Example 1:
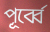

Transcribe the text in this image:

পূর্ব্বে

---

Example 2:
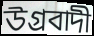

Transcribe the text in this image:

উগ্রবাদী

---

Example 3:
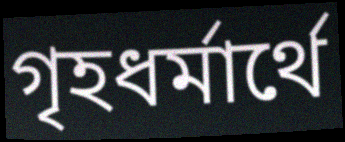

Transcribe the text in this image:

গৃহধর্মার্থে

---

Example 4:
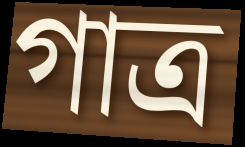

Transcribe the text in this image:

গাত্র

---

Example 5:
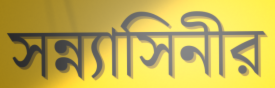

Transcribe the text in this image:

সন্ন্যাসিনীর